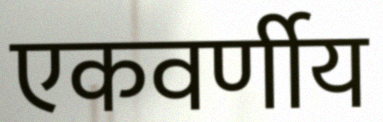
एकवर्णीय